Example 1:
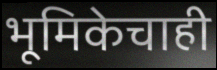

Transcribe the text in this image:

भूमिकेचाही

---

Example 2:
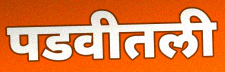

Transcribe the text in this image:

पडवीतली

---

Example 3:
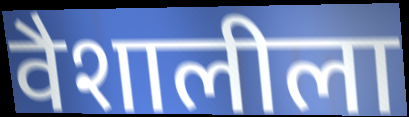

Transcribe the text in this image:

वैशालीला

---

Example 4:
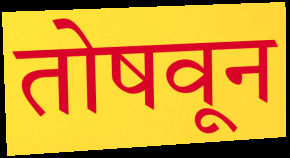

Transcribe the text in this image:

तोषवून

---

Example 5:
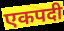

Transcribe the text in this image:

एकपदी